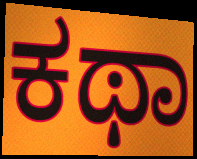
ಕಥಾ